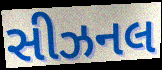
સીઝનલ